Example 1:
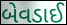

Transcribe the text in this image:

બેવડાઈ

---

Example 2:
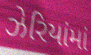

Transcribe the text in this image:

ઝેરિયાંમાં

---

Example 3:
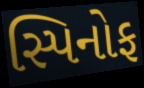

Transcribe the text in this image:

સ્પિનોફ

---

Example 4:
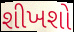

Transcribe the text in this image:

શીખશો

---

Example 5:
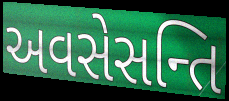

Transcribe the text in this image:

અવસેસન્તિ